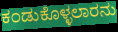
ಕಂಡುಕೊಳ್ಳಲಾರನು